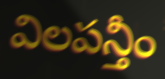
విలపన్తీం